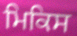
ਮਿਕਿਸ